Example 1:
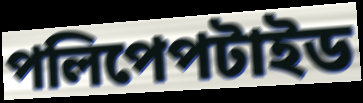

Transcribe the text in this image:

পলিপেপটাইড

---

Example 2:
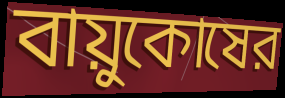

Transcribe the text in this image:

বায়ুকোষের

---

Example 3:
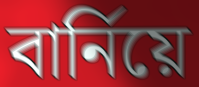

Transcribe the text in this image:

বার্নিয়ে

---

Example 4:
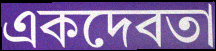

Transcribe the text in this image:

একদেবতা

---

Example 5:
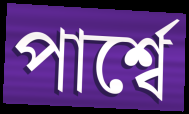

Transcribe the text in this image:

পার্শ্বে